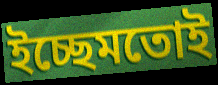
ইচ্ছেমতোই